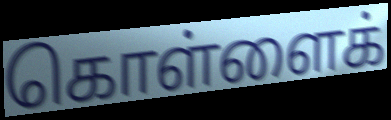
கொள்ளைக்